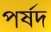
পর্ষদ